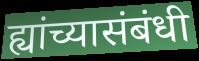
ह्यांच्यासंबंधी